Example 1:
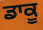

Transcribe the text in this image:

ਡਾਕੂ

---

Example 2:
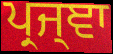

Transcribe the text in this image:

ਪ੍ਰਜ੍ਞਾ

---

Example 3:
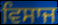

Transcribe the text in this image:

ਵਿਸਾਜ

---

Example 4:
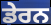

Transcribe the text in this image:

ਡੇਰਨ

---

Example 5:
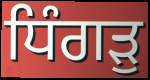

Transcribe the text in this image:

ਧਿੰਗੜੁ